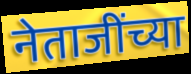
नेताजींच्या